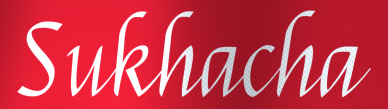
Sukhacha